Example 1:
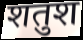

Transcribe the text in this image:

शतुश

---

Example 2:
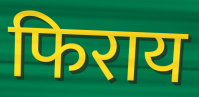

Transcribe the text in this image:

फिराय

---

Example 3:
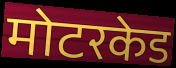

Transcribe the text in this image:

मोटरकेड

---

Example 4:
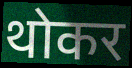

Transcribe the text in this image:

थोकर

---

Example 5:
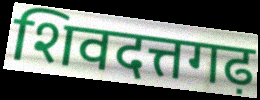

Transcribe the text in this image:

शिवदत्तगढ़